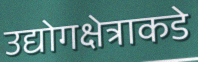
उद्योगक्षेत्राकडे